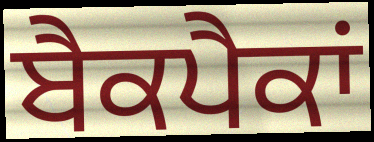
ਬੈਕਪੈਕਾਂ